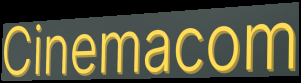
Cinemacom